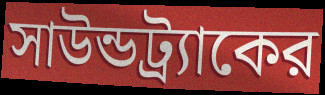
সাউন্ডট্র্যাকের